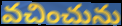
వచించును